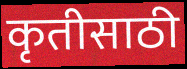
कृतीसाठी